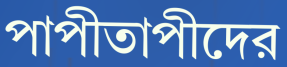
পাপীতাপীদের